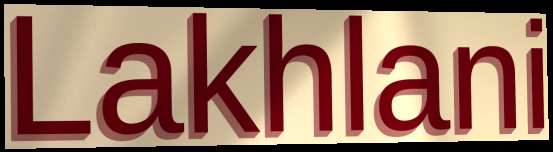
Lakhlani